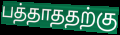
பத்தாததற்கு